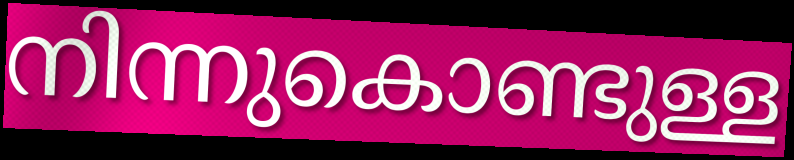
നിന്നുകൊണ്ടുള്ള